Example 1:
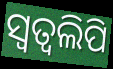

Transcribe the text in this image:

ସ୍ଵତ୍ଵଲିପି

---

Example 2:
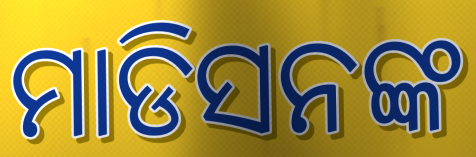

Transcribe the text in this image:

ମାଡିସନଙ୍କ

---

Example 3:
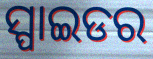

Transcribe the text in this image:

ସ୍ପାଇଡର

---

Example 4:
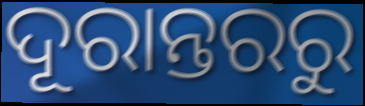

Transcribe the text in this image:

ଦୂରାନ୍ତରରୁ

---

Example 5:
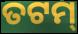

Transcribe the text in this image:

ତଟମ୍